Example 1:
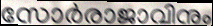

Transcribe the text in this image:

സോർരാജാവിനും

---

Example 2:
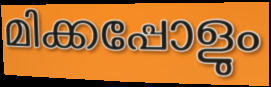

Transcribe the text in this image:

മിക്കപ്പോളും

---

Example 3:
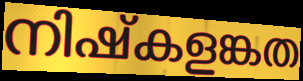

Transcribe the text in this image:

നിഷ്‌കളങ്കത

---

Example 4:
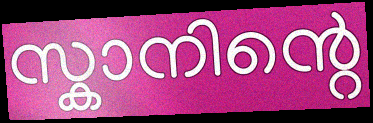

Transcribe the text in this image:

സ്കാനിന്റെ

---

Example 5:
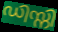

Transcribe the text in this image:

ഡിസ്നി